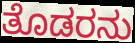
ತೊಡರನು